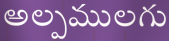
అల్పములగు